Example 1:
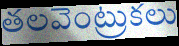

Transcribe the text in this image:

తలవెంట్రుకలు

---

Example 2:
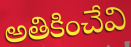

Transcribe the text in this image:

అతికించేవి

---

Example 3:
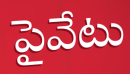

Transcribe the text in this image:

పైవేటు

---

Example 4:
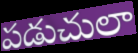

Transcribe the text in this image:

పడుచులా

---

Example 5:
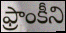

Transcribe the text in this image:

ఫ్రాంకీని